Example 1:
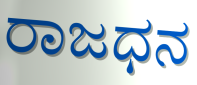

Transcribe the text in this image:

ರಾಜಧನ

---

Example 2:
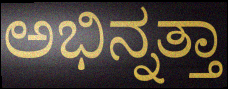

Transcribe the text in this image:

ಅಭಿನ್ನತ್ತಾ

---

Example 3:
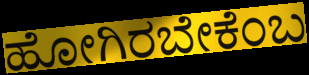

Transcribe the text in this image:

ಹೋಗಿರಬೇಕೆಂಬ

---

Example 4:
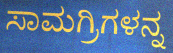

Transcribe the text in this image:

ಸಾಮಗ್ರಿಗಳನ್ನ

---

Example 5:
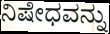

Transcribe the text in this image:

ನಿಷೇಧವನ್ನು